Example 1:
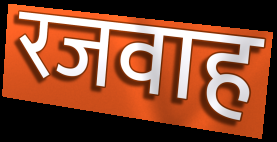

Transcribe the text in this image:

रजवाह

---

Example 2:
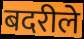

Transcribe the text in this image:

बदरीले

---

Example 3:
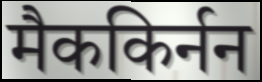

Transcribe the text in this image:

मैककिर्नन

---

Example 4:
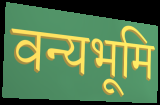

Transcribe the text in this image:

वन्यभूमि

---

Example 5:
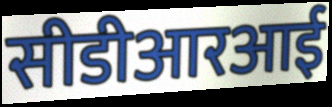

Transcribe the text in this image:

सीडीआरआई